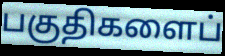
பகுதிகளைப்